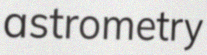
astrometry